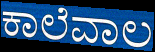
ಕಾಲೆವಾಲ